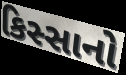
કિસ્સાનો